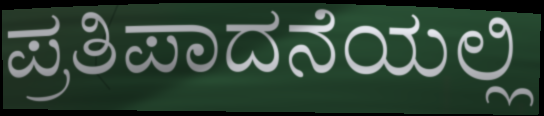
ಪ್ರತಿಪಾದನೆಯಲ್ಲಿ